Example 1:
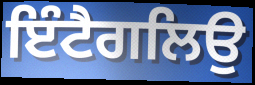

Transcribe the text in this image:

ਇੰਟੈਗਲਿਉ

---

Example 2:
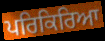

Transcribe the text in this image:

ਪਰਿਕਿਰਿਆ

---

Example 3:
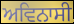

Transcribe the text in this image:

ਅਵਿਨਾਸੀ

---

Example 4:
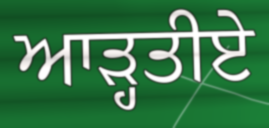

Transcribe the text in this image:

ਆੜ੍ਹਤੀਏ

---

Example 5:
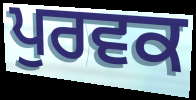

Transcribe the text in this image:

ਪੁਰਵਕ